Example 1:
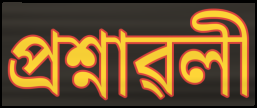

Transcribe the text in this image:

প্ৰশ্নাৱলী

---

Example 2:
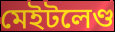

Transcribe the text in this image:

মেইটলেণ্ড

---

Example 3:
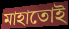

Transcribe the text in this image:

মাহাতোই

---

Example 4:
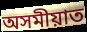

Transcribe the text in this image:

অসমীয়াত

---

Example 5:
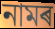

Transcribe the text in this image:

নামৰ